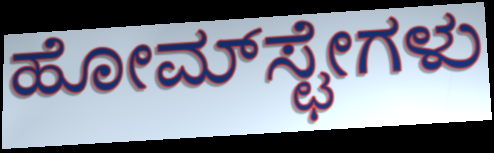
ಹೋಮ್‌ಸ್ಟೇಗಳು